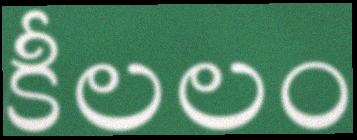
కీలలం